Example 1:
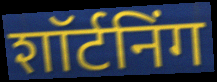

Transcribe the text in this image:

शॉर्टनिंग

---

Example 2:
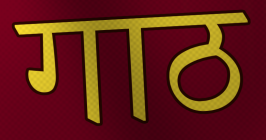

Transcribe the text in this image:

गाठ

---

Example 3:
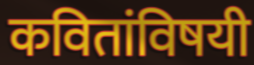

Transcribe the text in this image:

कवितांविषयी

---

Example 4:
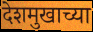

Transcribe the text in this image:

देशमुखाच्या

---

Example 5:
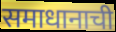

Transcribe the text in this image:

समाधानाची